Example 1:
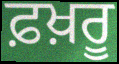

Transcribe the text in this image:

ਫ਼ਖ਼ਰੂ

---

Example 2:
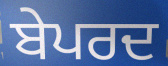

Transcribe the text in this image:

ਬੇਪਰਦ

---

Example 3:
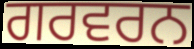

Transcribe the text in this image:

ਗਰਵਰਨ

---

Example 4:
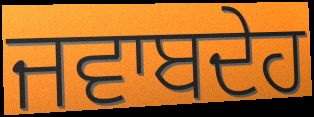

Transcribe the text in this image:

ਜਵਾਬਦੇਹ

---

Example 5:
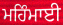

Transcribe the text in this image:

ਮਹਿੰਮਾਈ